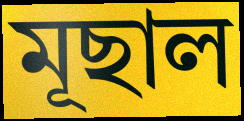
মূছাল